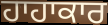
ਹਾਹਾਕਾਰ